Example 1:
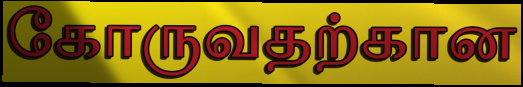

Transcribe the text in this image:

கோருவதற்கான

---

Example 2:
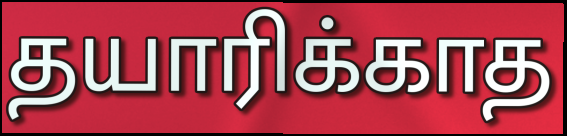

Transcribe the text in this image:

தயாரிக்காத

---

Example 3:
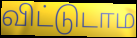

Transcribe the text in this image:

விட்டுடாம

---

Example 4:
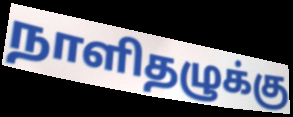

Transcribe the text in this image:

நாளிதழுக்கு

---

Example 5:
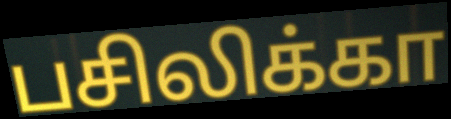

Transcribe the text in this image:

பசிலிக்கா